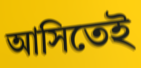
আসিতেই